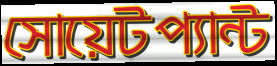
সোয়েটপ্যান্ট